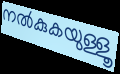
നൽകുകയുള്ളൂ